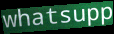
whatsupp